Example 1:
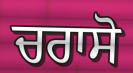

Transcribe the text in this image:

ਚਰਾਸੋ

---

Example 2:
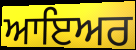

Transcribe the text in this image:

ਆਇਅਰ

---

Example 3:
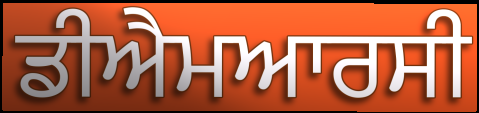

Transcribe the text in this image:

ਡੀਐਮਆਰਸੀ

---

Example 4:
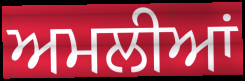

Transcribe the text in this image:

ਅਮਲੀਆਂ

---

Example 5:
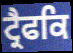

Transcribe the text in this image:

ਟ੍ਰੈਫਕਿ